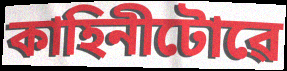
কাহিনীটোৱে